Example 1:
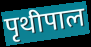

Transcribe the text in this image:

पृथीपाल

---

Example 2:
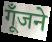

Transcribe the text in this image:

गूँजने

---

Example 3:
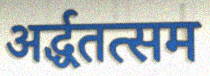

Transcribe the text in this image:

अर्द्धतत्सम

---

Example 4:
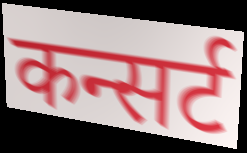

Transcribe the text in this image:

कन्सर्ट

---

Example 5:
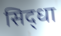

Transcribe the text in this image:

सिद्धा